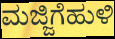
ಮಜ್ಜಿಗೆಹುಳಿ